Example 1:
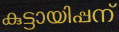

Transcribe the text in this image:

കുട്ടായിപ്പന്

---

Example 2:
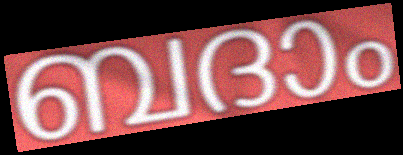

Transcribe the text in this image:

ബദാം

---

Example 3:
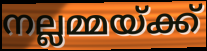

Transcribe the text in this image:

നല്ലമ്മയ്ക്ക്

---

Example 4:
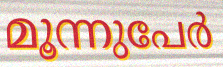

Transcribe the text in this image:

മൂന്നുപേർ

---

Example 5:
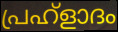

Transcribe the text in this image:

പ്രഹ്ളാദം